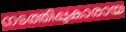
നടത്തിപ്പുകാരായ